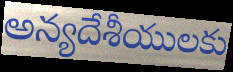
అన్యదేశీయులకు